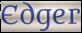
Edger